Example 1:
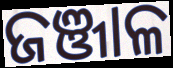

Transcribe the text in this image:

ଜଞ୍ଜାଳ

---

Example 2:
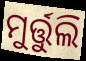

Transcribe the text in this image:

ମୁର୍ତ୍ତୁଲି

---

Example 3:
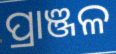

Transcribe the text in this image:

ପ୍ରାଞ୍ଜଳ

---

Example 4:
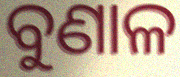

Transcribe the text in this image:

ବୁଣାଳ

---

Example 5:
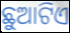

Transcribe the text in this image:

ଛୁଆଟିଏ